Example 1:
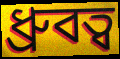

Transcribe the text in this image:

ধ্রুবত্ব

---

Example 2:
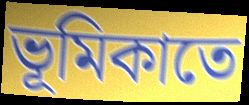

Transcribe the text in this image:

ভূমিকাতে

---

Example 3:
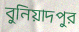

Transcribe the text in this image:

বুনিয়াদপুর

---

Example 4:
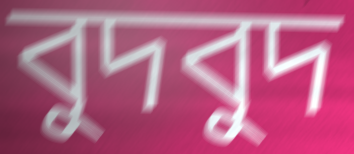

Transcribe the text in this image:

বুদবুদ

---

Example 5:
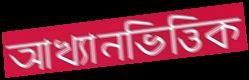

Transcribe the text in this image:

আখ্যানভিত্তিক